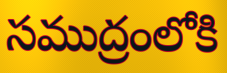
సముద్రంలోకి